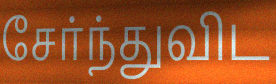
சேர்ந்துவிட